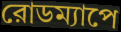
রোডম্যাপে